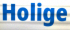
Holige